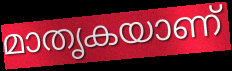
മാതൃകയാണ്